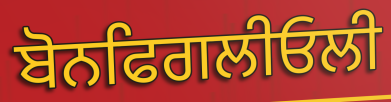
ਬੋਨਫਿਗਲੀਓਲੀ